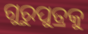
ଗୁରୁପୁତ୍ରକୁ